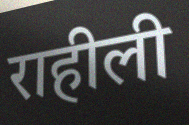
राहीली